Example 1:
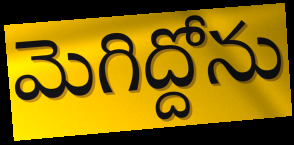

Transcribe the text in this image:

మెగిద్దోను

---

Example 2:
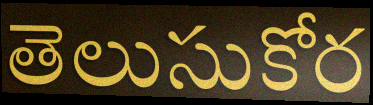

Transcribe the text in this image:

తెలుసుకోర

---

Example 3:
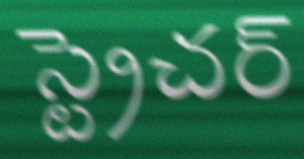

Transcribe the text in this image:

స్ట్రెచర్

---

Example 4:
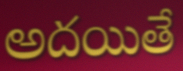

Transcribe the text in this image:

అదయితే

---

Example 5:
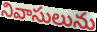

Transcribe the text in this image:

నివాసులును